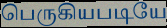
பெருகியபடியே